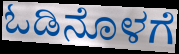
ಓಡಿನೊಳಗೆ